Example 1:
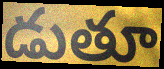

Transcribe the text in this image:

డుతూ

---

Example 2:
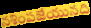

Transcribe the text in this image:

నశింపజేయునది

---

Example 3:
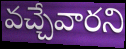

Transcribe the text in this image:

వచ్చేవారని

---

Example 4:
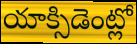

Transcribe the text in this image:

యాక్సిడెంట్లో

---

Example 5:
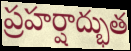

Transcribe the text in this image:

ప్రహర్షాద్భుత